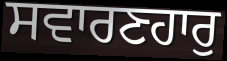
ਸਵਾਰਣਹਾਰੁ